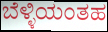
ಬೆಳ್ಳಿಯಂತಹ